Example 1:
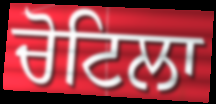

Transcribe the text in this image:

ਚੋਟਿਲਾ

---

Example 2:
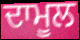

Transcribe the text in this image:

ਦਾਮੂਲ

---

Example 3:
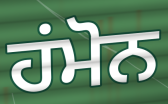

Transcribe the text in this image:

ਹਂਮੋਨ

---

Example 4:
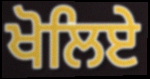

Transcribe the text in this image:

ਖੋਲਿਏ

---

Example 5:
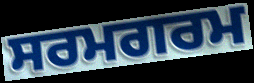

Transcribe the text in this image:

ਸਰਮਗਰਮ